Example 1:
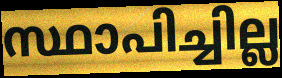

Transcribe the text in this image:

സ്ഥാപിച്ചില്ല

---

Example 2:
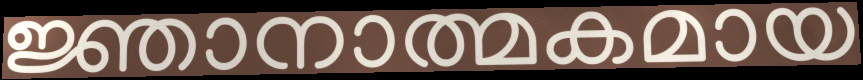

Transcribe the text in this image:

ജ്ഞാനാത്മകമായ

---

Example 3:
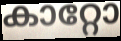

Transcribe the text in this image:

കാറ്റോ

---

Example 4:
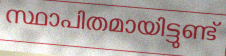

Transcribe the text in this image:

സ്ഥാപിതമായിട്ടുണ്ട്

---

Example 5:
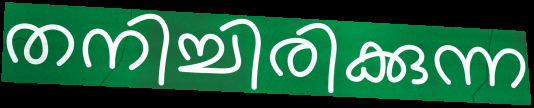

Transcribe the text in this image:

തനിച്ചിരിക്കുന്ന